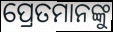
ପ୍ରେତମାନଙ୍କୁ